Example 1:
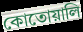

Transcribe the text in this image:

কোতোয়ালি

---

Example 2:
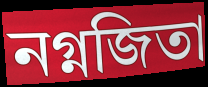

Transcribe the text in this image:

নগ্নজিতা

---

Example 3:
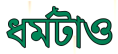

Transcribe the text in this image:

ধর্মটাও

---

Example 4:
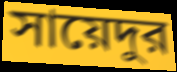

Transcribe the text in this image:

সায়েদুর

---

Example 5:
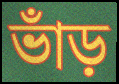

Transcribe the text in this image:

ভাঁড়